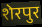
शेरपुर